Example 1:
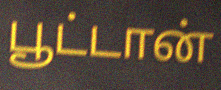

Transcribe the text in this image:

பூட்டான்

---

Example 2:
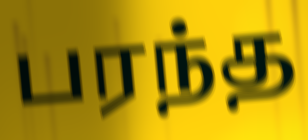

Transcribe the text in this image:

பரந்த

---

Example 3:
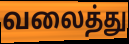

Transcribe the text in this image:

வலைத்து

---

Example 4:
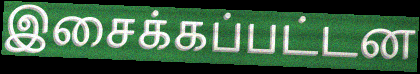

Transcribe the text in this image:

இசைக்கப்பட்டன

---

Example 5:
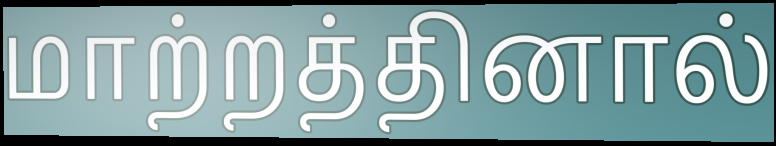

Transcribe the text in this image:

மாற்றத்தினால்